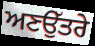
ਅਣਉੱਤਰੇ